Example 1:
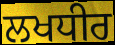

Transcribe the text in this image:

ਲਖਧੀਰ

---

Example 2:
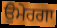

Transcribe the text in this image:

ਉਮੇਰਗਾ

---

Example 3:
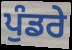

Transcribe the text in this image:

ਪੁੰਡਰੇ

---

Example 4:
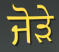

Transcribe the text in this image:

ਜੋਡ਼ੇ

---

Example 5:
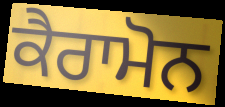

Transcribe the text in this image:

ਕੈਰਾਮੋਨ